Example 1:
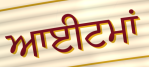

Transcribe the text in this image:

ਆਈਟਮਾਂ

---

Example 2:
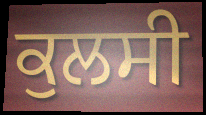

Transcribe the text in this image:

ਕੁਲਸੀ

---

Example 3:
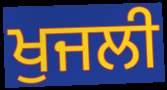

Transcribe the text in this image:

ਖੁਜਲੀ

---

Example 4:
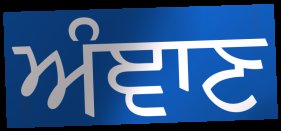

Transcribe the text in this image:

ਅੰਞਾਣ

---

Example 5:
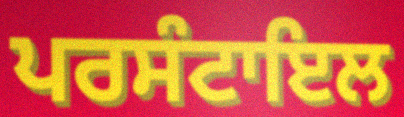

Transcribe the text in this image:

ਪਰਸੰਟਾਇਲ